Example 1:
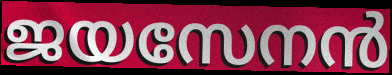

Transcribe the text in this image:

ജയസേനൻ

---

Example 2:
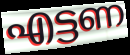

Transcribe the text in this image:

എട്ടണ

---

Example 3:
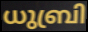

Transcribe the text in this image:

ധുബ്രി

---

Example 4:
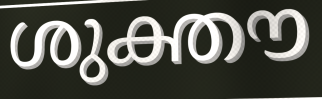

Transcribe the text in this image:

ശുക്തൗ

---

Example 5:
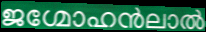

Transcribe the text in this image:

ജഗ്മോഹൻലാൽ